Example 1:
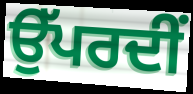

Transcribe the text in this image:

ਉੱਪਰਦੀਂ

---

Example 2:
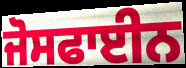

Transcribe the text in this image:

ਜੋਸਫਾਈਨ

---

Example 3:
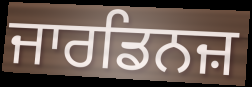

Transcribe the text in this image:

ਜਾਰਡਿਨਜ਼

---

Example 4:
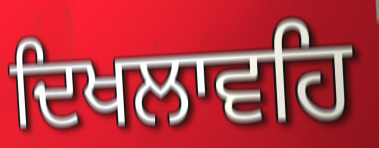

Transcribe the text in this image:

ਦਿਖਲਾਵਹਿ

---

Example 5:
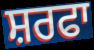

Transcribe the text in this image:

ਸ਼ਰਫਾ